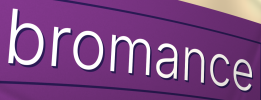
bromance